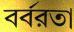
বর্বরতা